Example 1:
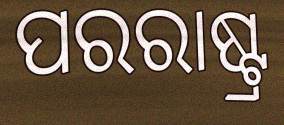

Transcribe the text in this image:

ପରରାଷ୍ଟ୍ର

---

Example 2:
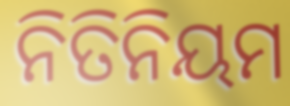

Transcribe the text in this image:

ନିତିନିୟମ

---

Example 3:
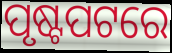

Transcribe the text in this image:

ପୃଷ୍ଟପଟରେ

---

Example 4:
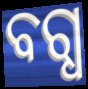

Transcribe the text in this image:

ବଗ୍ଧ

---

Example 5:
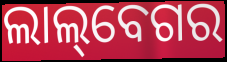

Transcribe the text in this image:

ଲାଲ୍‌ବେଗର